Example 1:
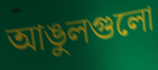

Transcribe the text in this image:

আঙুলগুলো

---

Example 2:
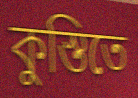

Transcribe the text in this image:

কুস্তিতে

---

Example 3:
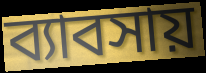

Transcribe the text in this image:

ব্যাবসায়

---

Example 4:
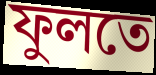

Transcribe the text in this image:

ফুলতে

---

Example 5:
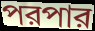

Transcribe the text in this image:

পরপার